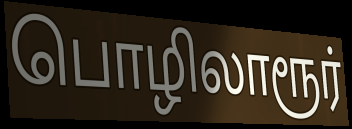
பொழிலாரூர்